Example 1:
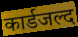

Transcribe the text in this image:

कार्डजल्द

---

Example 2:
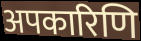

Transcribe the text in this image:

अपकारिणि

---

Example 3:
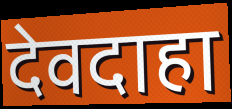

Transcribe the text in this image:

देवदाहा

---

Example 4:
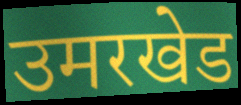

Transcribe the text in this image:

उमरखेड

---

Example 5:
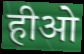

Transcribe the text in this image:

हीओ